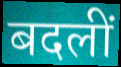
बदलीं